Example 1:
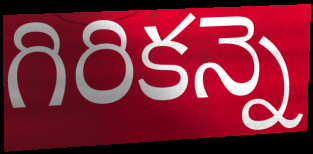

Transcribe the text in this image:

గిరికన్నె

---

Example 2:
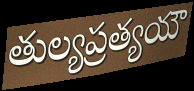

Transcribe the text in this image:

తుల్యప్రత్యయౌ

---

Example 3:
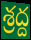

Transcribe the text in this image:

శ్రద్ద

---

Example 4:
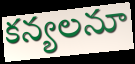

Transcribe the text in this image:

కన్యలనూ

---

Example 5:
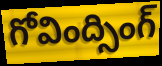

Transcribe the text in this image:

గోవింద్సింగ్